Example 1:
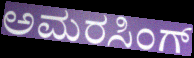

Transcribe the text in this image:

ಅಮರಸಿಂಗ್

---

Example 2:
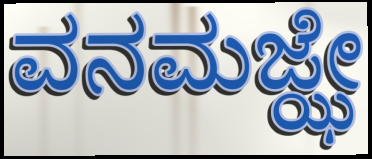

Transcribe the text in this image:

ವನಮಜ್ಝೇ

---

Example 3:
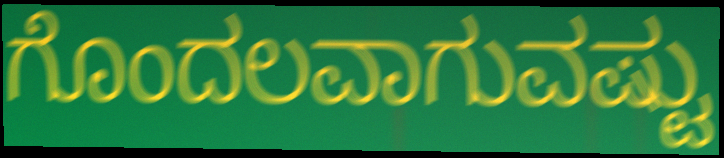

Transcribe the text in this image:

ಗೊಂದಲವಾಗುವಷ್ಟು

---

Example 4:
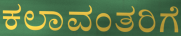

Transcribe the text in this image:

ಕಲಾವಂತರಿಗೆ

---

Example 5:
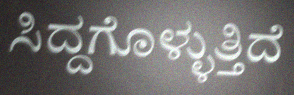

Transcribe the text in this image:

ಸಿದ್ದಗೊಳ್ಳುತ್ತಿದೆ